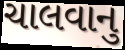
ચાલવાનુ